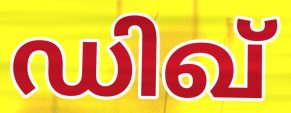
ഡിഖ്